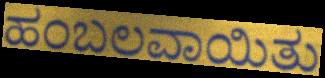
ಹಂಬಲವಾಯಿತು